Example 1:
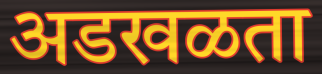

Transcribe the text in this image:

अडखळता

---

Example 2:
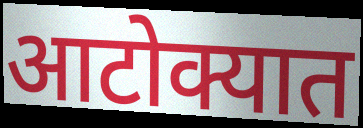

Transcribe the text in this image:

आटोक्यात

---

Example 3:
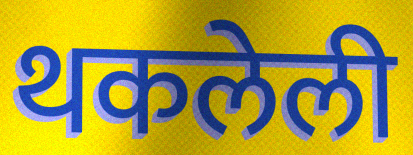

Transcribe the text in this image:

थकलेली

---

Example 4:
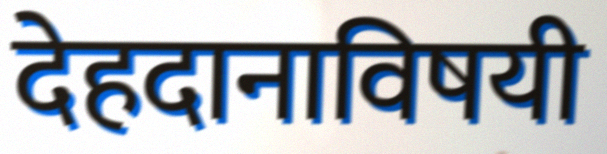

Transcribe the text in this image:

देहदानाविषयी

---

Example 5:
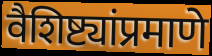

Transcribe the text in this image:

वैशिष्ट्यांप्रमाणे